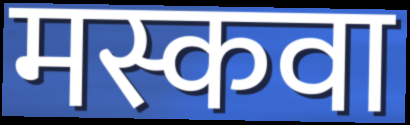
मस्कवा